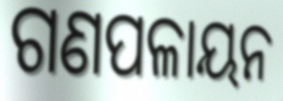
ଗଣପଳାୟନ